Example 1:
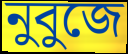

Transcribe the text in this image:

নুবুজে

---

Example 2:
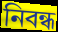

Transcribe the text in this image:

নিবন্ধ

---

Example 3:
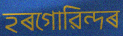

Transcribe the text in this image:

হৰগোৱিন্দৰ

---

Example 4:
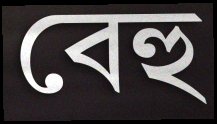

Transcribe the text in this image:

বেহু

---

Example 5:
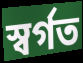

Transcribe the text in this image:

স্বৰ্গত